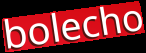
bolecho